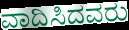
ವಾದಿಸಿದವರು